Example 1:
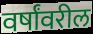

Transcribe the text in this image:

वर्षांवरील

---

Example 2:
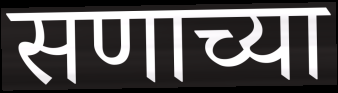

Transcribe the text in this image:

सणाच्या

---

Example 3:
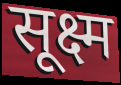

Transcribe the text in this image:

सूक्ष्म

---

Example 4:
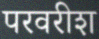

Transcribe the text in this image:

परवरीश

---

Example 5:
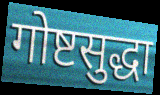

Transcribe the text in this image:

गोष्टसुद्धा